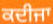
ਕਦੀਜਾ